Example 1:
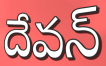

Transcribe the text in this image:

దేవన్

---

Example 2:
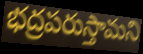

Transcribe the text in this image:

భద్రపరుస్తామని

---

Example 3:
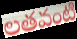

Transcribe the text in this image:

లతవంటి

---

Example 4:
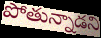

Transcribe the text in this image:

పోతున్నాడని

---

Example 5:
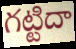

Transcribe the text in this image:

గట్టిదా